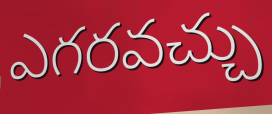
ఎగరవచ్చు